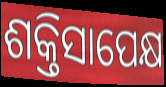
ଶକ୍ତିସାପେକ୍ଷ